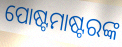
ପୋଷ୍ଟମାଷ୍ଟରଙ୍କ